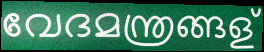
വേദമന്ത്രങ്ങള്